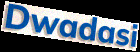
Dwadasi